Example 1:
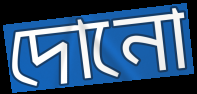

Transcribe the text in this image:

দোনো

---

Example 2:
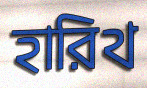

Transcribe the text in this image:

হারিথ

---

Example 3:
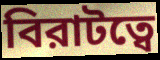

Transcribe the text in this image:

বিরাটত্বে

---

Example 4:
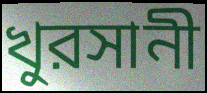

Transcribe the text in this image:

খুরসানী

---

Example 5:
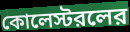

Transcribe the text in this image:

কোলেস্টরলের